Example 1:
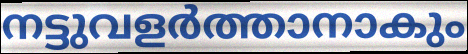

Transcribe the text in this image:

നട്ടുവളർത്താനാകും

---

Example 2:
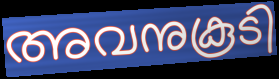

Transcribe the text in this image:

അവനുകൂടി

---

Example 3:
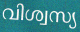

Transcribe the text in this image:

വിശ്വസ്യ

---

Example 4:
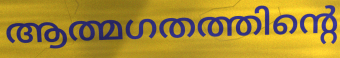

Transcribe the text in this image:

ആത്മഗതത്തിന്റെ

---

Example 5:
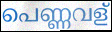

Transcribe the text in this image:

പെണ്ണവള്